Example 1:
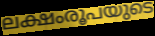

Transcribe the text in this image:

ലക്ഷംരൂപയുടെ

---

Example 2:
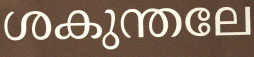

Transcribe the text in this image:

ശകുന്തലേ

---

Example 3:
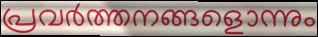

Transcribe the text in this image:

പ്രവർത്തനങ്ങളൊന്നും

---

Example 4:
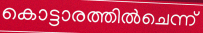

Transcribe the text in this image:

കൊട്ടാരത്തിൽചെന്ന്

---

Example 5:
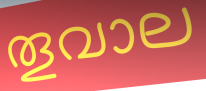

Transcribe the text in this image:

തൂവാല